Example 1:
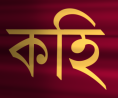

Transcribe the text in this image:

কহি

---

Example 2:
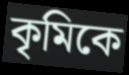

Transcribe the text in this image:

কৃমিকে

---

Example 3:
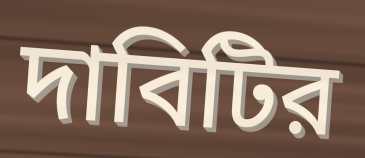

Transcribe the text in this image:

দাবিটির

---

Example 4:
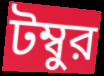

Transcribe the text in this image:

টম্বুর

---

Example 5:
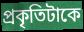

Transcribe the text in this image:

প্রকৃতিটাকে